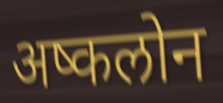
अष्कलोन